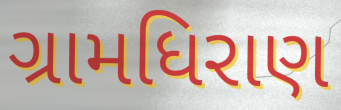
ગ્રામધિરાણ